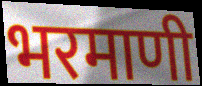
भरमाणी